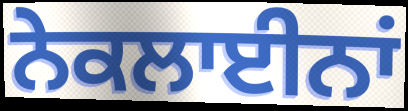
ਨੇਕਲਾਈਨਾਂ